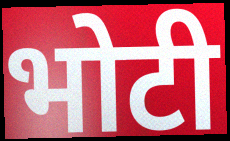
भोटी